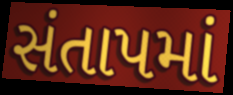
સંતાપમાં